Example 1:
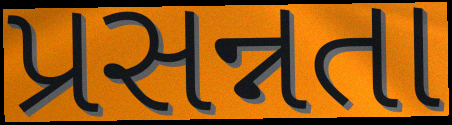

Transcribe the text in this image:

પ્રસન્નતા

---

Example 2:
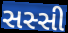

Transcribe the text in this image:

સસ્સી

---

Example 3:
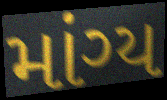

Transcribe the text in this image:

માંગ્ય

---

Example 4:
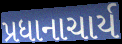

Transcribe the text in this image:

પ્રધાનાચાર્ય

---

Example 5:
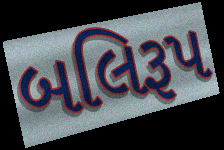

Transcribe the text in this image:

બલિરૂપ